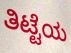
ತಿಟ್ಟೆಯ